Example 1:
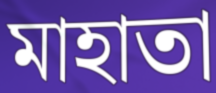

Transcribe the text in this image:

মাহাতা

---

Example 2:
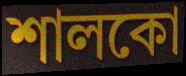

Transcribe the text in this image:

শালকো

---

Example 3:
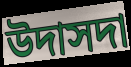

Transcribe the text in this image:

উদাসদা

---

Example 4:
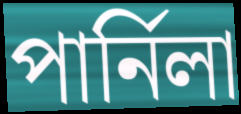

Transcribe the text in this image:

পার্নিলা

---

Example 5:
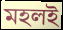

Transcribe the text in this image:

মহলই